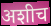
अशीच